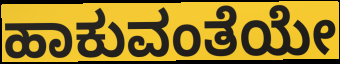
ಹಾಕುವಂತೆಯೇ